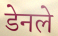
डेनले